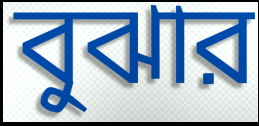
বুঝার